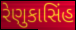
રેણુકાસિંહ